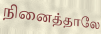
நினைத்தாலே